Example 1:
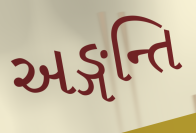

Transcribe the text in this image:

અઙ્ગન્તિ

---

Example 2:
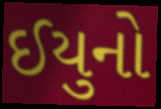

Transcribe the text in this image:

ઈયુનો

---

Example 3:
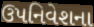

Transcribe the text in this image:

ઉપનિવેશના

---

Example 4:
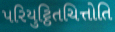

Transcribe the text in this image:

પરિયુટ્ઠિતચિત્તોતિ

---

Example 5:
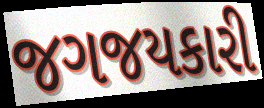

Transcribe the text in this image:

જગજયકારી